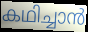
കഥിച്ചാൻ